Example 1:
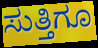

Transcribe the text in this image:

ಸುತ್ತಿಗೂ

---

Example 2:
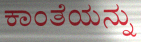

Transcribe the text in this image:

ಕಾಂತೆಯನ್ನು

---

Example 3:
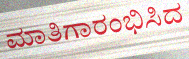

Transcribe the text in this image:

ಮಾತಿಗಾರಂಭಿಸಿದ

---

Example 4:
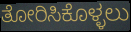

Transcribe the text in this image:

ತೋರಿಸಿಕೊಳ್ಳಲು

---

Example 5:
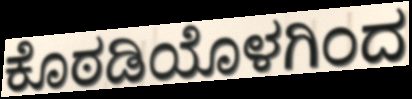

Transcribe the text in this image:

ಕೊಠಡಿಯೊಳಗಿಂದ